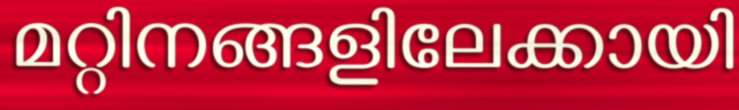
മറ്റിനങ്ങളിലേക്കായി